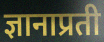
ज्ञानाप्रती